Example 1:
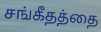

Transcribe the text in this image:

சங்கீதத்தை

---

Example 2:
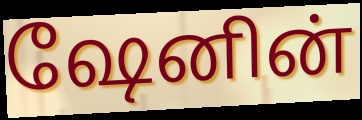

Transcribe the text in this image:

ஷேனின்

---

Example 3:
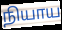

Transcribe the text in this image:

நியாய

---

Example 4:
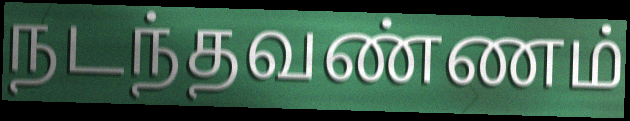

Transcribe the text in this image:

நடந்தவண்ணம்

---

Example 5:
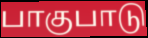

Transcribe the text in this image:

பாகுபாடு